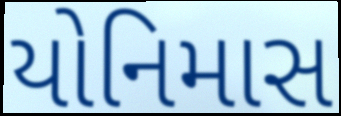
યોનિમાસ